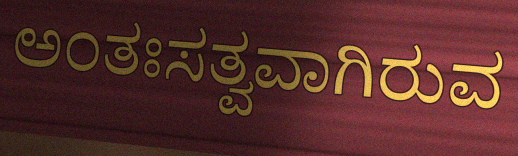
ಅಂತಃಸತ್ವವಾಗಿರುವ